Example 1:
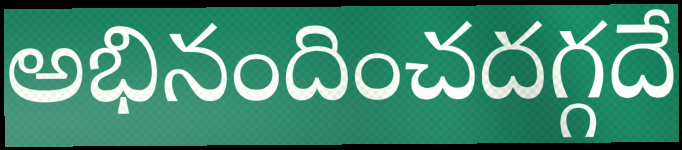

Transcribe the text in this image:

అభినందించదగ్గదే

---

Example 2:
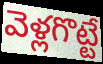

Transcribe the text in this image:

వెళ్లగొట్టే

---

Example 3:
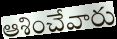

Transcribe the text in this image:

ఆశించేవారు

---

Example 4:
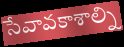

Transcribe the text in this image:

సేవావకాశాల్ని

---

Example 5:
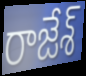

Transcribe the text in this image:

రాజేశ్